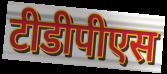
टीडीपीएस